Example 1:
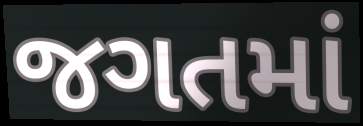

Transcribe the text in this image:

જગતમાં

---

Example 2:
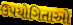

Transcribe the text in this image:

ઉપયોગિતાઓ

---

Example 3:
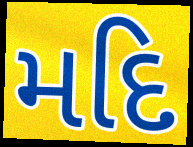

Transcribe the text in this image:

મદિ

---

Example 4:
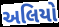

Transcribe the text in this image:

અલિયો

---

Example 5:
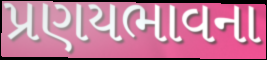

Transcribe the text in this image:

પ્રણયભાવના